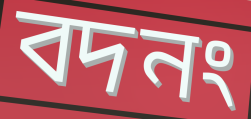
বদনং